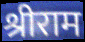
श्रीराम